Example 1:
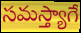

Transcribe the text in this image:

సమస్త్యాగే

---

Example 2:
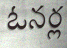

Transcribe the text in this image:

ఓనర్ల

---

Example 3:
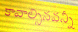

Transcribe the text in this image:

కావాల్సినవన్నీ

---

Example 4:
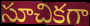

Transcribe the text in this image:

సూచికగా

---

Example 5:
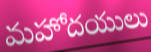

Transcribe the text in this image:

మహోదయులు